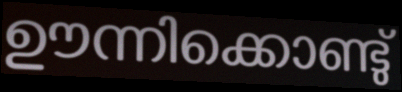
ഊന്നിക്കൊണ്ടു്